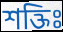
শক্তিঃ